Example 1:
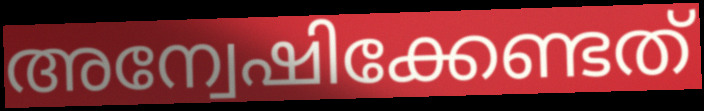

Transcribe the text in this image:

അന്വേഷിക്കേണ്ടത്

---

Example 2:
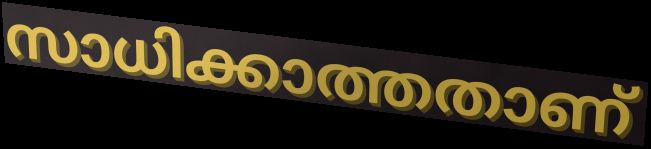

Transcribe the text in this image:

സാധിക്കാത്തതാണ്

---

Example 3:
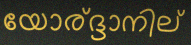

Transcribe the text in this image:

യോര്ദ്ദാനില്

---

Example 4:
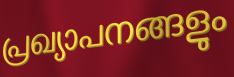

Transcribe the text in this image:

പ്രഖ്യാപനങ്ങളും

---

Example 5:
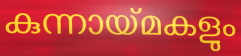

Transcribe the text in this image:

കുന്നായ്മകളും